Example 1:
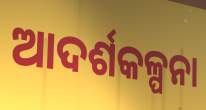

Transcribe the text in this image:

ଆଦର୍ଶକଳ୍ପନା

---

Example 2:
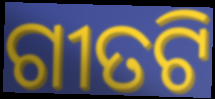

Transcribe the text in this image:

ଗୀତଟି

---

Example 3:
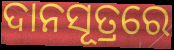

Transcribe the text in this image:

ଦାନସୂତ୍ରରେ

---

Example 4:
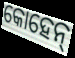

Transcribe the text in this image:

କୋହେନ୍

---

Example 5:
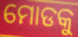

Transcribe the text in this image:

ମୋଡକୁ